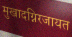
मुखादग्निरजायत